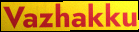
Vazhakku